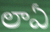
లాఏ